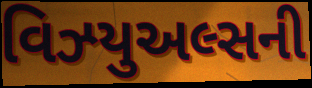
વિઝ્યુઅલ્સની